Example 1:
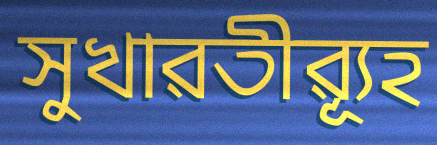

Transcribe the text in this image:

সুখাৱতীৱ্যূহ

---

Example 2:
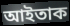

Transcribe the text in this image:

আইতাক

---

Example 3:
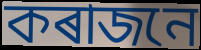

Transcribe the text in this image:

কৰাজনে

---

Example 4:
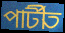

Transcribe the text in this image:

পাৰ্টীত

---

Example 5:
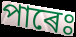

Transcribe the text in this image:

পাৰেঃ